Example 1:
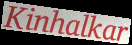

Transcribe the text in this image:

Kinhalkar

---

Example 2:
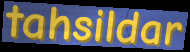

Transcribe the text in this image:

tahsildar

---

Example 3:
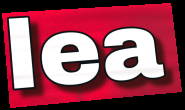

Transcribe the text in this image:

lea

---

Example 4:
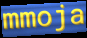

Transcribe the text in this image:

mmoja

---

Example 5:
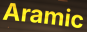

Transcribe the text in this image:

Aramic